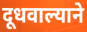
दूधवाल्याने